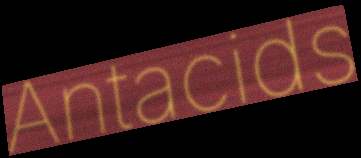
Antacids